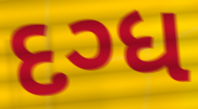
દગ્ધ